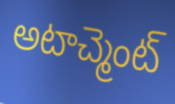
అటాచ్మెంట్